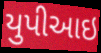
યુપીઆઇ